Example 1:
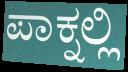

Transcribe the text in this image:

ಪಾಕ್ನಲ್ಲಿ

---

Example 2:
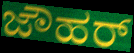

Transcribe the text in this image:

ಜೌಹರ್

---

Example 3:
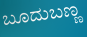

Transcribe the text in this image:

ಬೂದುಬಣ್ಣ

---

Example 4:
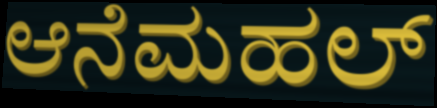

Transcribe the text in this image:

ಆನೆಮಹಲ್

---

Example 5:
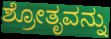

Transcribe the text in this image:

ಶ್ರೋತೃವನ್ನು